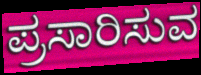
ಪ್ರಸಾರಿಸುವ